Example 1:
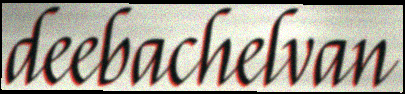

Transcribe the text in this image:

deebachelvan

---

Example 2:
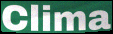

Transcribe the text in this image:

Clima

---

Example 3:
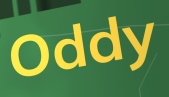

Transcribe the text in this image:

Oddy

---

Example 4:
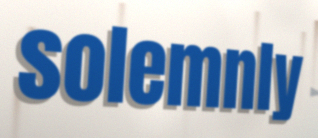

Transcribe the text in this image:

solemnly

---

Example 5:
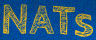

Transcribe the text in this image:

NATs